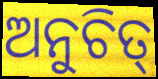
ଅନୁଚିତ୍